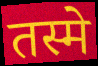
तस्मे